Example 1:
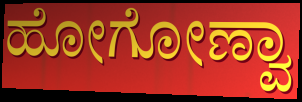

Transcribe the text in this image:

ಹೋಗೋಣ್ವಾ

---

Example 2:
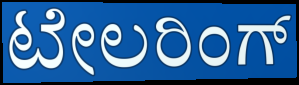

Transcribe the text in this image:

ಟೇಲರಿಂಗ್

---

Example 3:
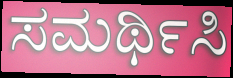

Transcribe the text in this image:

ಸಮರ್ಥಿಸಿ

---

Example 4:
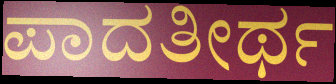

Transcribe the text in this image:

ಪಾದತೀರ್ಥ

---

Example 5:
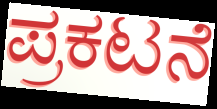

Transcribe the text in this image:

ಪ್ರಕಟನೆ